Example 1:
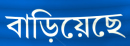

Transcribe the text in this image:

বাড়িয়েছে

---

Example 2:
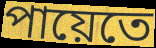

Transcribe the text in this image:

পায়েতে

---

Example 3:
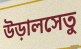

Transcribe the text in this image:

উড়ালসেতু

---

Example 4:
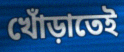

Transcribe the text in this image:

খোঁড়াতেই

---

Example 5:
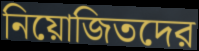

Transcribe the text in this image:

নিয়োজিতদের